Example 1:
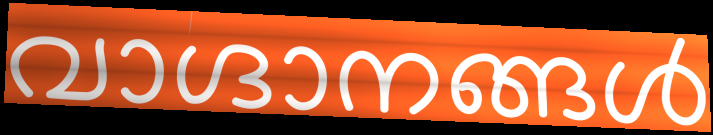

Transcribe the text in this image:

വാഗ്ദാനങ്ങൾ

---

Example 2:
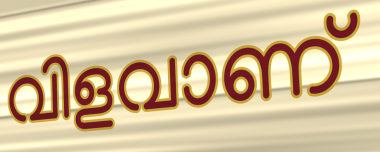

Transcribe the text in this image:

വിളവാണ്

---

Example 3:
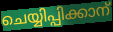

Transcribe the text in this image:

ചെയ്യിപ്പിക്കാന്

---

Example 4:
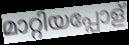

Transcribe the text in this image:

മാറ്റിയപ്പോള്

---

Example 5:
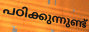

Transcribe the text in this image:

പഠിക്കുന്നുണ്ട്